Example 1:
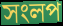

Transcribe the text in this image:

সংলপ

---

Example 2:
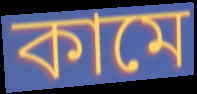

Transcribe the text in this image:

কামে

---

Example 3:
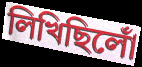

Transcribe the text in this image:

লিখিছিলোঁ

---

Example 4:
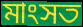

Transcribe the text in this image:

মাংসত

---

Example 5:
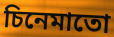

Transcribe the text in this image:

চিনেমাতো